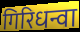
गिरिधन्वा